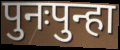
पुनःपुन्हा